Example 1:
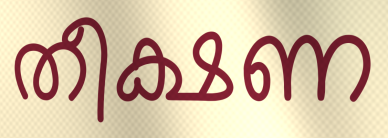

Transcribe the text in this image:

തീക്ഷണ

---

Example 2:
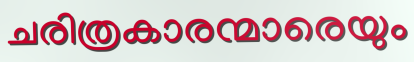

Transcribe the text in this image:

ചരിത്രകാരന്മാരെയും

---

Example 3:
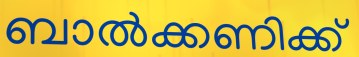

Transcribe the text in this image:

ബാൽക്കണിക്ക്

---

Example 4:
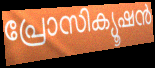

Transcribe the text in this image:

പ്രോസിക്യൂഷൻ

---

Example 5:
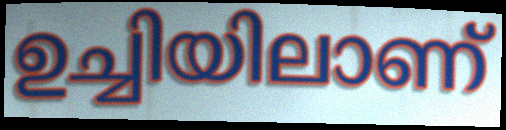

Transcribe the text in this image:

ഉച്ചിയിലാണ്